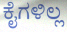
ಕೈಗಳಿಲ್ಲ